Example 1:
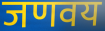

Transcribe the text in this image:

जणवय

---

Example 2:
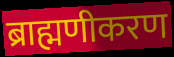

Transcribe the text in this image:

ब्राह्मणीकरण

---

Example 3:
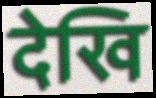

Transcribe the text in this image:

देखि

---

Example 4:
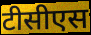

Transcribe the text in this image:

टीसीएस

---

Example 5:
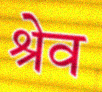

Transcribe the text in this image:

श्रेव